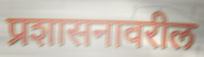
प्रशासनावरील